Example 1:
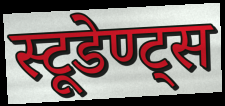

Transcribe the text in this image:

स्टूडेण्ट्स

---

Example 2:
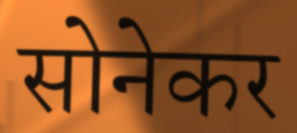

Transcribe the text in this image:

सोनेकर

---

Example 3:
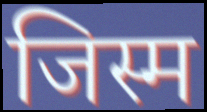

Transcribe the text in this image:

जिस्म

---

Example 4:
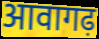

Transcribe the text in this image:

आवागढ़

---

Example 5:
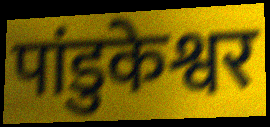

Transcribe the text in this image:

पांडुकेश्वर